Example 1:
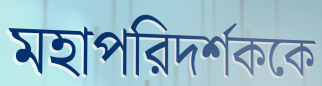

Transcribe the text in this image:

মহাপরিদর্শককে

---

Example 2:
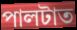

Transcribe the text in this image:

পালটাত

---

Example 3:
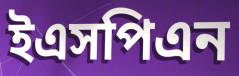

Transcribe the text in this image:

ইএসপিএন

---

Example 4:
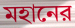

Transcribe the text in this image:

মহানের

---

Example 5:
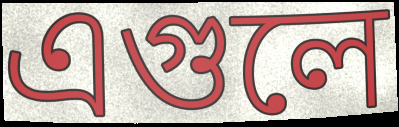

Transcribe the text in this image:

এগুলে